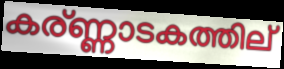
കര്ണ്ണാടകത്തില്